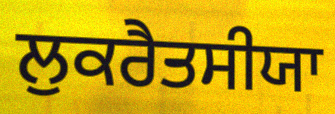
ਲੁਕਰੈਤਸੀਯਾ